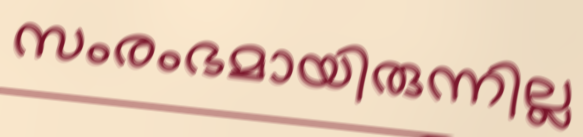
സംരംഭമായിരുന്നില്ല